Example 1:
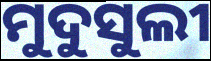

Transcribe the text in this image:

ମୁଦୁସୁଲୀ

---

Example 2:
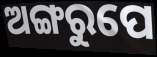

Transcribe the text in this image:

ଅଙ୍ଗରୁପେ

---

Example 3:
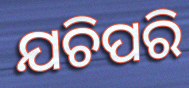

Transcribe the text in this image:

ଯଚିପରି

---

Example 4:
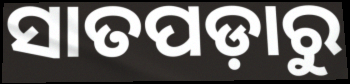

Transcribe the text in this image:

ସାତପଡ଼ାରୁ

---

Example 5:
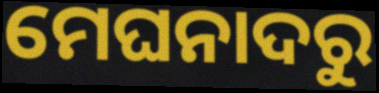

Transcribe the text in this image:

ମେଘନାଦରୁ